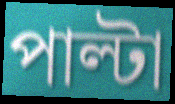
পাল্টা